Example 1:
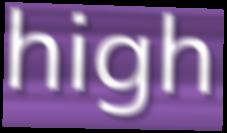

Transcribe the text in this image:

high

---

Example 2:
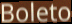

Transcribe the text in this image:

Boleto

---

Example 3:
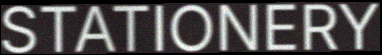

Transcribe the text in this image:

STATIONERY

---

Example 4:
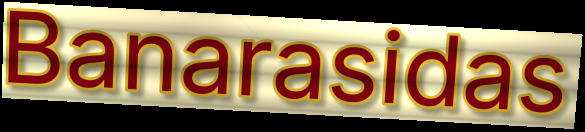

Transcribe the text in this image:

Banarasidas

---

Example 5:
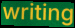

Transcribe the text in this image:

writing